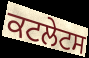
ਕਟਲੇਟਸ